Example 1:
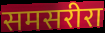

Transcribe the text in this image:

समसरीरा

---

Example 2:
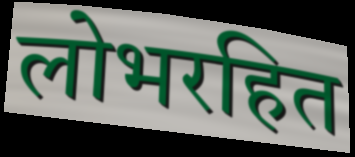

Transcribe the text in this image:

लोभरहित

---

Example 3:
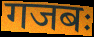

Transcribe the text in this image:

गजबः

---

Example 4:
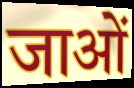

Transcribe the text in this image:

जाओं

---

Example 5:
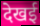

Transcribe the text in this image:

देखई